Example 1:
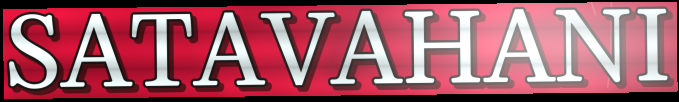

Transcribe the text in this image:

SATAVAHANI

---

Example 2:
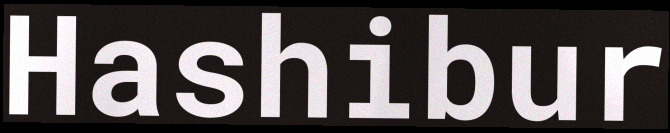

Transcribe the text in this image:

Hashibur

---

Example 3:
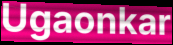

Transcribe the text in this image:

Ugaonkar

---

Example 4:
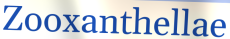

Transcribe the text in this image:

Zooxanthellae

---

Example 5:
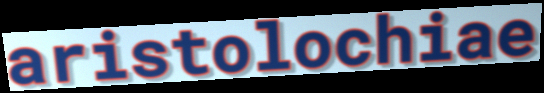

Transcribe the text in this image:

aristolochiae